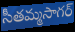
సీతమ్మసాగర్